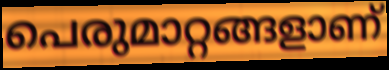
പെരുമാറ്റങ്ങളാണ്